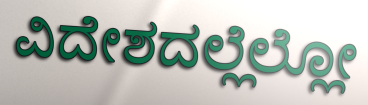
ವಿದೇಶದಲ್ಲೆಲ್ಲೋ